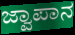
ಜ್ವಾಪಾನ